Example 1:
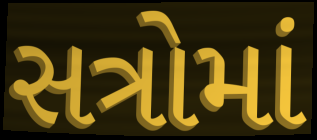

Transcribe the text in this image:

સત્રોમાં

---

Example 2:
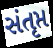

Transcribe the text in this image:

સંતૃપ્ત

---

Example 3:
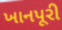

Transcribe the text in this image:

ખાનપૂરી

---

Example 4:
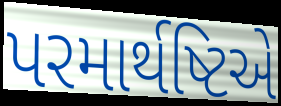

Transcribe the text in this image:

પરમાર્થષ્ટિએ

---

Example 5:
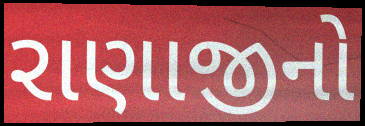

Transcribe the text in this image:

રાણાજીનો